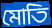
মোতি